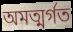
অমত্মর্গত